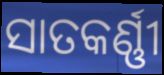
ସାତକର୍ଣ୍ଣୀ